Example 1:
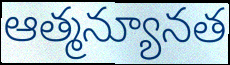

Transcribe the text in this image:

ఆత్మన్యూనత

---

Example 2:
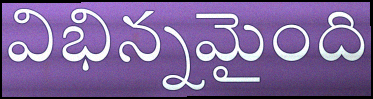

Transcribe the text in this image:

విభిన్నమైంది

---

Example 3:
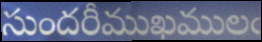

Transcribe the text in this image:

సుందరీముఖములఁ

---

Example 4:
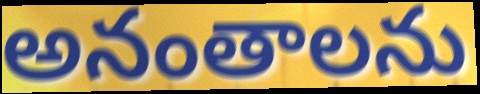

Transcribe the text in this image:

అనంతాలను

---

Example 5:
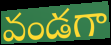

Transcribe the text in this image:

వండగా